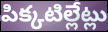
పిక్కటిల్లేట్లు